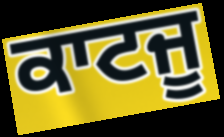
ਕਾਟਜੂ